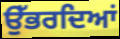
ਉੱਭਰਦਿਆਂ